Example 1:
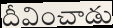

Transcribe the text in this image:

దీవించాడు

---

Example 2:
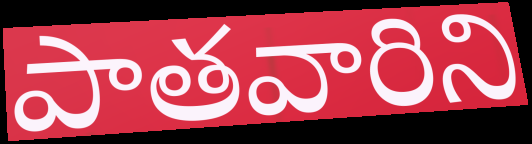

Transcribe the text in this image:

పాతవారిని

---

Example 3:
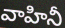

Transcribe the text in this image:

వాహినీ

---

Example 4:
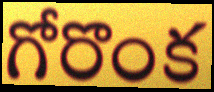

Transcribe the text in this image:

గోరొంక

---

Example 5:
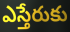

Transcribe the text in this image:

ఎస్తేరుకు